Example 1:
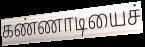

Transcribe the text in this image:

கண்ணாடியைச்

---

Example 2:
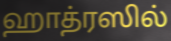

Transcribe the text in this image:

ஹாத்ரஸில்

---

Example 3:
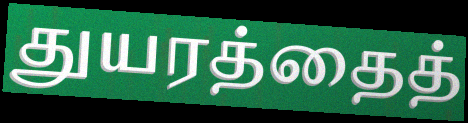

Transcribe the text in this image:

துயரத்தைத்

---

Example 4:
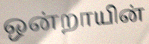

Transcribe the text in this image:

ஒன்றாயின்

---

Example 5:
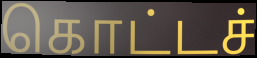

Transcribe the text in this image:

கொட்டச்